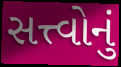
સત્ત્વોનું